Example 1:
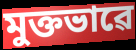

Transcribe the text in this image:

মুক্তভাৱে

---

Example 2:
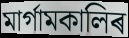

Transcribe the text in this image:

মাৰ্গামকালিৰ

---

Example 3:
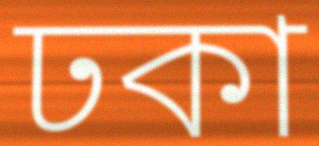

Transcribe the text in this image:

ঢকা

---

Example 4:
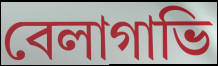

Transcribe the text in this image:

বেলাগাভি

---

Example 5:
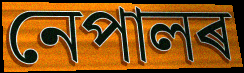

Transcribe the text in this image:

নেপালৰ